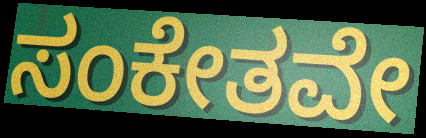
ಸಂಕೇತವೇ